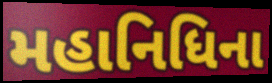
મહાનિધિના